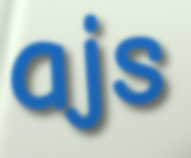
ajs